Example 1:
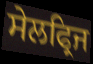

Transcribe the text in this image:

ਸੇਲਫ੍ਰਿਜ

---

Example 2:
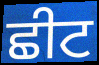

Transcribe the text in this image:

ਛੀਟ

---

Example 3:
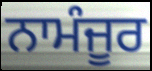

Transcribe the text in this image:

ਨਾਮੰਜੂਰ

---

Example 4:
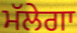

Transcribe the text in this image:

ਮੱਲੇਗਾ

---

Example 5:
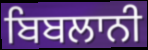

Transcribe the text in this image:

ਬਿਬਲਾਨੀ